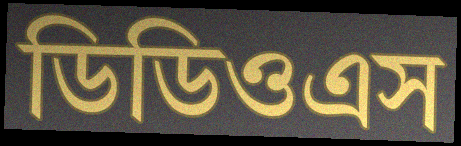
ডিডিওএস